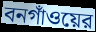
বনগাঁওয়ের